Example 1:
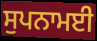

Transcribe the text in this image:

ਸੁਪਨਾਮਈ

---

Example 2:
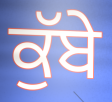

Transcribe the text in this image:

ਕੁੱਬੇ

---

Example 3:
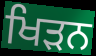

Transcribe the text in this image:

ਖਿੜਨ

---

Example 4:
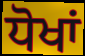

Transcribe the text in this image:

ਧੋਖਾਂ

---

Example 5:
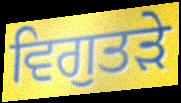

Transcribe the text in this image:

ਵਿਗੁਤੜੇ